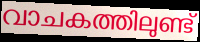
വാചകത്തിലുണ്ട്